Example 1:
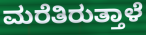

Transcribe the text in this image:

ಮರೆತಿರುತ್ತಾಳೆ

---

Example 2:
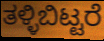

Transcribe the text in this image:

ತಳ್ಳಿಬಿಟ್ಟರೆ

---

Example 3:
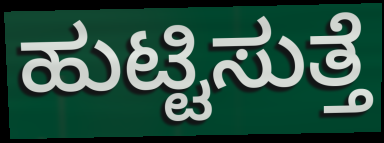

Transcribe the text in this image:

ಹುಟ್ಟಿಸುತ್ತೆ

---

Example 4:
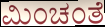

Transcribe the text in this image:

ಮಿಂಚಂತೆ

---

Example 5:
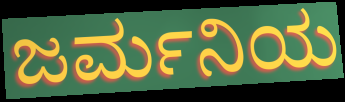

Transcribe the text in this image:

ಜರ್ಮನಿಯ